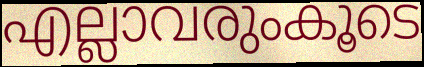
എല്ലാവരുംകൂടെ